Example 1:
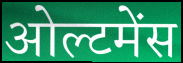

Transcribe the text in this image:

ओल्टमेंस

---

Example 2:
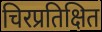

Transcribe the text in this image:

चिरप्रतिक्षित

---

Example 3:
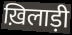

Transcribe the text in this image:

ख़िलाड़ी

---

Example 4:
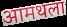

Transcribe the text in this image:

आमथला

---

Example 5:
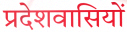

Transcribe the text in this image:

प्रदेशवासियों